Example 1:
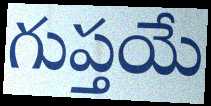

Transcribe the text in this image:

గుప్తయే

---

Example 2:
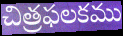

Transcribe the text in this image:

చిత్రఫలకము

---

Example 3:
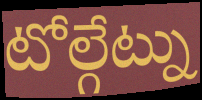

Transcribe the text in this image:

టోల్గేట్ను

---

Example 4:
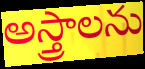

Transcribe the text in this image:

అస్త్రాలను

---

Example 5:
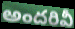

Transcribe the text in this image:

అందరివీ